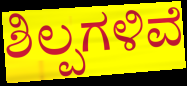
ಶಿಲ್ಪಗಳಿವೆ